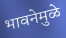
भावनेमुळे